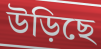
উড়িছে